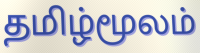
தமிழ்மூலம்